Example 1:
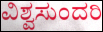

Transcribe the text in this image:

ವಿಶ್ವಸುಂದರಿ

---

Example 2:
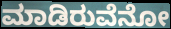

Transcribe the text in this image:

ಮಾಡಿರುವೆನೋ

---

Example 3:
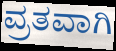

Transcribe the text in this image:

ವ್ರತವಾಗಿ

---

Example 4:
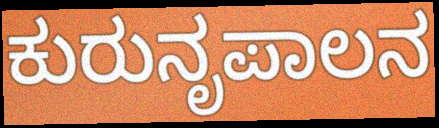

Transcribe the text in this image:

ಕುರುನೃಪಾಲನ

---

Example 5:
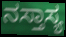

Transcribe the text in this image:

ನಸ್ತಾಸ್ಯ